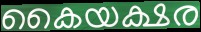
കൈയക്ഷര